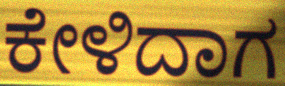
ಕೇಳಿದಾಗ